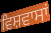
ਵਿਸ਼ਵਾਸਾਂ